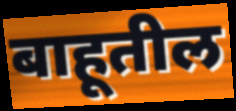
बाहूतील